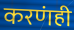
करणंही